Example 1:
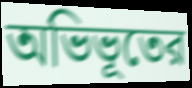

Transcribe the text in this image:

অভিভূতের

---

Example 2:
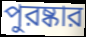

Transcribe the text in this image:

পুরষ্কার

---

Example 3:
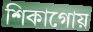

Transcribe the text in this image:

শিকাগোয়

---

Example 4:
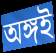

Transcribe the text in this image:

অঙ্গই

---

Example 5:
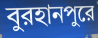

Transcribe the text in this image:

বুরহানপুরে